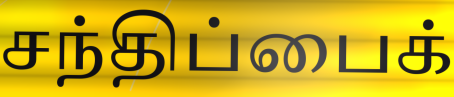
சந்திப்பைக்